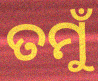
ତମୁଁ